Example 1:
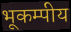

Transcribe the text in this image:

भूकम्पीय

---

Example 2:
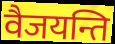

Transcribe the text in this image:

वैजयन्ति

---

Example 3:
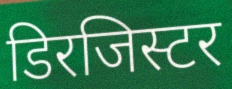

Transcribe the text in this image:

डिरजिस्टर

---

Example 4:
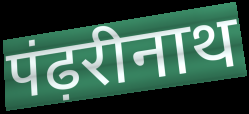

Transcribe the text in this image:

पंढ़रीनाथ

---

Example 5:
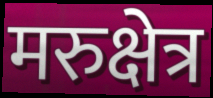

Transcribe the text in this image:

मरुक्षेत्र